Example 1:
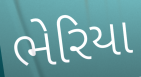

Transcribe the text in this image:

ભેરિયા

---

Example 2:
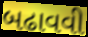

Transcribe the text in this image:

બઢાવવી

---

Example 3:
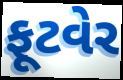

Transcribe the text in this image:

ફૂટવેર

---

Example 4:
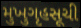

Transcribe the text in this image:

મુખુગૃહસૂચી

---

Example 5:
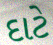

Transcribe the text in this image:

દાટે